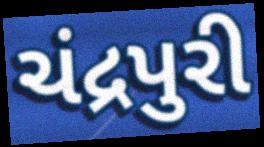
ચંદ્રપુરી